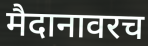
मैदानावरच